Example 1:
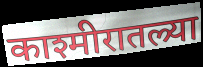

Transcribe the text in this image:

काश्मीरातल्या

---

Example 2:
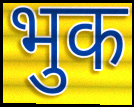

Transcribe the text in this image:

भुक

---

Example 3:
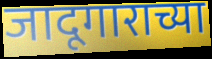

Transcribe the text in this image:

जादूगाराच्या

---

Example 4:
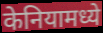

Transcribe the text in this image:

केनियामध्ये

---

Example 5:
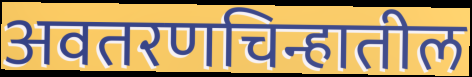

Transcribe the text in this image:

अवतरणचिन्हातील